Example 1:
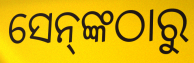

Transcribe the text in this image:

ସେନ୍‌ଙ୍କଠାରୁ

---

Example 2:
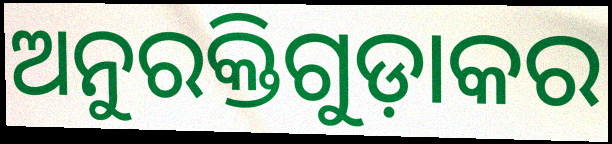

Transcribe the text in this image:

ଅନୁରକ୍ତିଗୁଡ଼ାକର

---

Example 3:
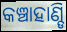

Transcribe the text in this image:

କଞ୍ଚାହାଣ୍ଡି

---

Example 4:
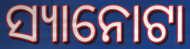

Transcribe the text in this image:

ସ୍ୟାନୋଟା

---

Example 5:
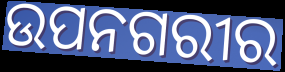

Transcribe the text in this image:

ଉପନଗରୀର